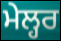
ਮੇਲ੍ਹਰ